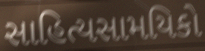
સાહિત્યસામયિકો